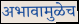
अभावामुळेच